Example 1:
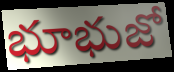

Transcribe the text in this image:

భూభుజో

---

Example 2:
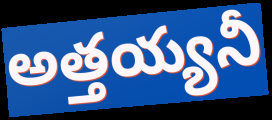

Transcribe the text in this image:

అత్తయ్యనీ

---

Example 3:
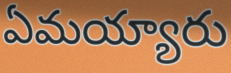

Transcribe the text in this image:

ఏమయ్యారు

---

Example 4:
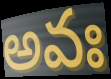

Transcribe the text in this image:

అవః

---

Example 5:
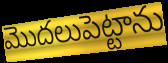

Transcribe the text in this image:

మొదలుపెట్టాను